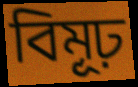
বিমূঢ়